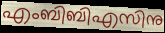
എംബിബിഎസിനു